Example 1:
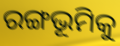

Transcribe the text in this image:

ରଙ୍ଗଭୂମିକୁ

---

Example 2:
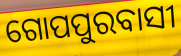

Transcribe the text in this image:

ଗୋପପୁରବାସୀ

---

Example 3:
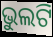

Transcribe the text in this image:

ଭୁଲଟି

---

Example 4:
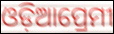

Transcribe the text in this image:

ଓଡ଼ିଆପ୍ରେମୀ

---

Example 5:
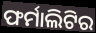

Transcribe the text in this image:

ଫର୍ମାଲିଟିର